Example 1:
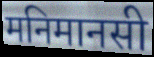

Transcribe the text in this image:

मनिमानसी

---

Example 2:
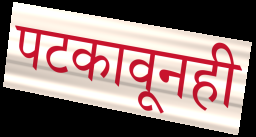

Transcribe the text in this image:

पटकावूनही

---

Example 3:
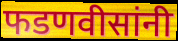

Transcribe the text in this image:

फडणवीसांनी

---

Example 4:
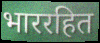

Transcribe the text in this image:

भाररहित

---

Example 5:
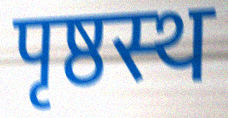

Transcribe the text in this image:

पृष्ठस्थ